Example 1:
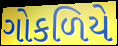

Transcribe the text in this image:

ગોકળિયે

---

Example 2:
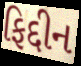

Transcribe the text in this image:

ફિદ્દીન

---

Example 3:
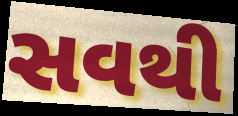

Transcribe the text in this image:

સવથી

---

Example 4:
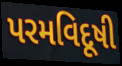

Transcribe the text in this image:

પરમવિદૂષી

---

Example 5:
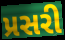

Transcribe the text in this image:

પ્રસરી